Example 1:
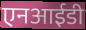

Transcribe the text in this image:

एनआईडी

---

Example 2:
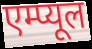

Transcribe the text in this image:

एम्प्यूल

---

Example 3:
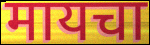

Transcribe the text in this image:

मायचा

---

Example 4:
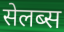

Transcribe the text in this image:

सेलब्स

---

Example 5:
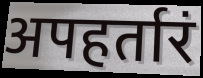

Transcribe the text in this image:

अपहर्तारं